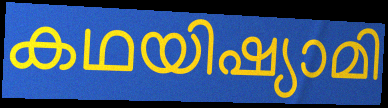
കഥയിഷ്യാമി